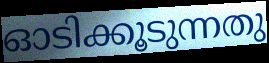
ഓടിക്കൂടുന്നതു